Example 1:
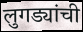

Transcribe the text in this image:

लुगड्यांची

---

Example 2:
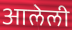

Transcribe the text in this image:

आलेली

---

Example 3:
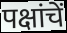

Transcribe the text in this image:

पक्षांचें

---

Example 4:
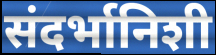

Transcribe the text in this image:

संदर्भानिशी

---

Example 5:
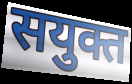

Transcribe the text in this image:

सयुक्त